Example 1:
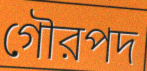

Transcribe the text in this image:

গৌরপদ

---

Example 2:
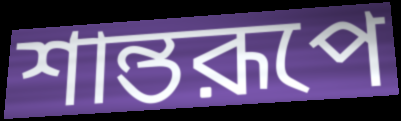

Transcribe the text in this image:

শান্তরূপে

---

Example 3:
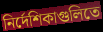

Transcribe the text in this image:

নির্দেশিকাগুলিতে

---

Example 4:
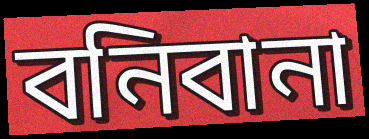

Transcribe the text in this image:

বনিবানা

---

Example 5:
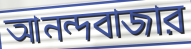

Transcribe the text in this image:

আনন্দবাজার